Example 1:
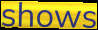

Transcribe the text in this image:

shows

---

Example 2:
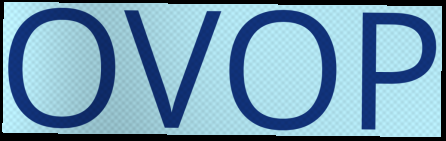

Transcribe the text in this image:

OVOP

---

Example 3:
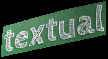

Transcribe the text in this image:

textual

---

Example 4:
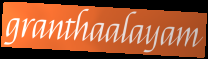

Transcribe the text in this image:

granthaalayam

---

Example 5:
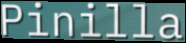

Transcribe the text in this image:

Pinilla